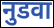
नुडवा